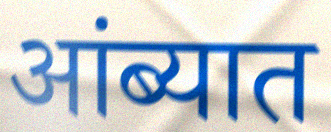
आंब्यात